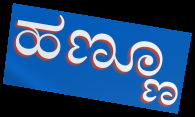
ಹಣ್ಣೂ